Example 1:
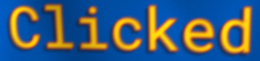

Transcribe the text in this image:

Clicked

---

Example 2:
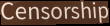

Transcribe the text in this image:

Censorship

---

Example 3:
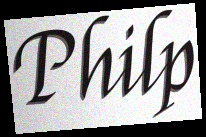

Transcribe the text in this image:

Philp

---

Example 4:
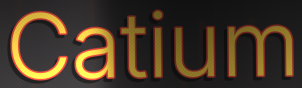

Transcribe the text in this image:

Catium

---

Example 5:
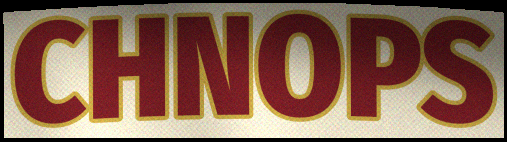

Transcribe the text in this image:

CHNOPS